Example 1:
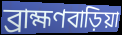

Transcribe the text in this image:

ব্রাহ্মণবাড়িয়া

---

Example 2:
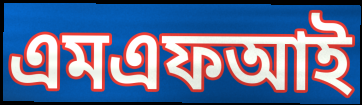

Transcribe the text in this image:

এমএফআই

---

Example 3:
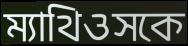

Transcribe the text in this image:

ম্যাথিওসকে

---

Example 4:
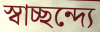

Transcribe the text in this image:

স্বাচ্ছন্দ্যে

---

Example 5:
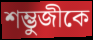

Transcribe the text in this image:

শম্ভুজীকে